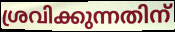
ശ്രവിക്കുന്നതിന്